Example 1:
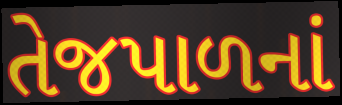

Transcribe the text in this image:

તેજપાળનાં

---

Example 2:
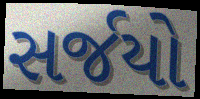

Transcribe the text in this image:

સર્જયો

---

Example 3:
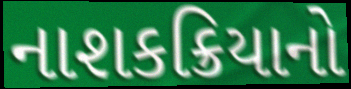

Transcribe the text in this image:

નાશકક્રિયાનો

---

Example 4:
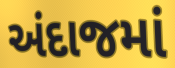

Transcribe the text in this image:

અંદાજમાં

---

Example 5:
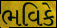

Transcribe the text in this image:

ભવિકે